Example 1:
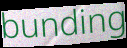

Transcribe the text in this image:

bunding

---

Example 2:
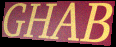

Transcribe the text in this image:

GHAB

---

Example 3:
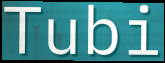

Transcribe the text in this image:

Tubi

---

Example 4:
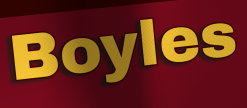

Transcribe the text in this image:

Boyles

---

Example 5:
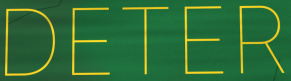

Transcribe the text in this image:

DETER